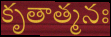
కృతాత్మనః